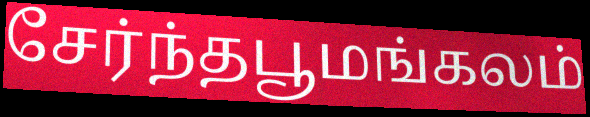
சேர்ந்தபூமங்கலம்